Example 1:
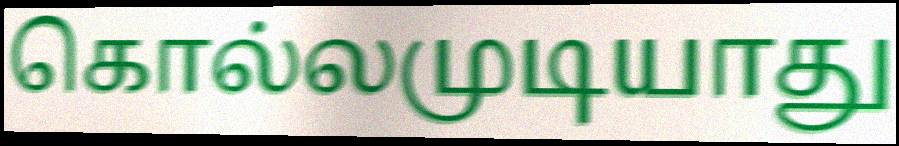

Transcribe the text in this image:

கொல்லமுடியாது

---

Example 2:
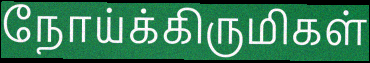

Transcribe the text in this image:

நோய்க்கிருமிகள்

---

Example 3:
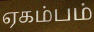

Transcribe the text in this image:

ஏகம்பம்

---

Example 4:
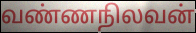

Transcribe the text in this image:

வண்ணநிலவன்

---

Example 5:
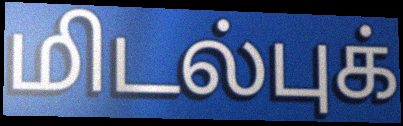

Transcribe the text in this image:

மிடல்புக்